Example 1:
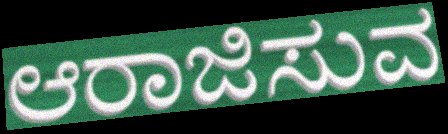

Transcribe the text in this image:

ಆರಾಜಿಸುವ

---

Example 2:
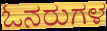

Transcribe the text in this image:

ಓನರುಗಳ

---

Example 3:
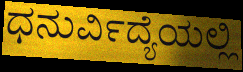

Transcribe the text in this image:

ಧನುರ್ವಿದ್ಯೆಯಲ್ಲಿ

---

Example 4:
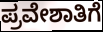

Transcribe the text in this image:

ಪ್ರವೇಶಾತಿಗೆ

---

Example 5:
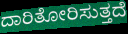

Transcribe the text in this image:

ದಾರಿತೋರಿಸುತ್ತದೆ